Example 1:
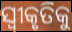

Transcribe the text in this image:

ସ୍ବୀକୃତିକୁ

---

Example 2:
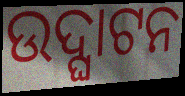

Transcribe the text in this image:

ଉଦ୍ଘାଟନ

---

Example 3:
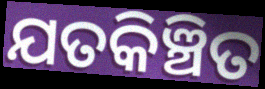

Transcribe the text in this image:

ଯତକିଞ୍ଚିତ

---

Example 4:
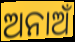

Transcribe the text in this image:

ଅନାଅଁ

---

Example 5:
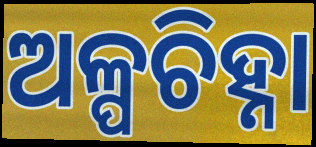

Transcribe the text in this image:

ଅଳ୍ପଚିହ୍ନା